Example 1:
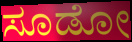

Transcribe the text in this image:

ಸೂಡೋ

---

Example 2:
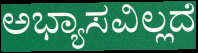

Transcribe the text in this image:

ಅಭ್ಯಾಸವಿಲ್ಲದೆ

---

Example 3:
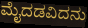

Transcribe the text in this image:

ಮೈದಡವಿದನು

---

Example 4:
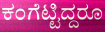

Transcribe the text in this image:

ಕಂಗೆಟ್ಟಿದ್ದರೂ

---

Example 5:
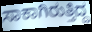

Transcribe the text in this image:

ಸಾಕಾಗಿರುತ್ತಿದ್ದ